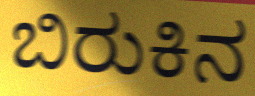
ಬಿರುಕಿನ